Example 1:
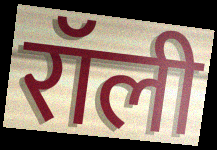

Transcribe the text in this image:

रॉली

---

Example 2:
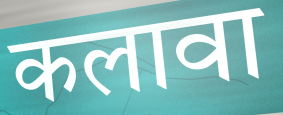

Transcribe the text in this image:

कलावा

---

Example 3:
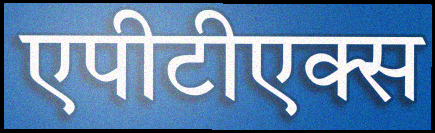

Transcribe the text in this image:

एपीटीएक्स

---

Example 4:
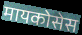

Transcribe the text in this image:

मायकोसेस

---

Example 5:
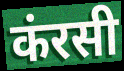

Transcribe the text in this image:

कंरसी